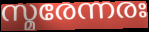
സ്മരേന്നരഃ